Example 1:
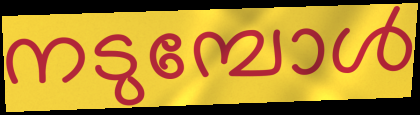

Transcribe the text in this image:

നടുമ്പോൾ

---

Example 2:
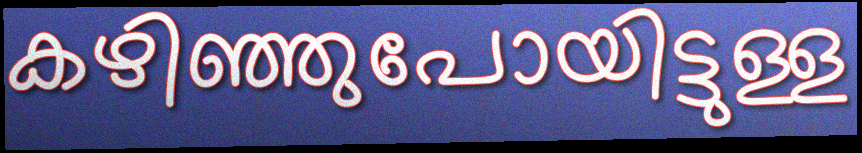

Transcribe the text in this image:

കഴിഞ്ഞുപോയിട്ടുള്ള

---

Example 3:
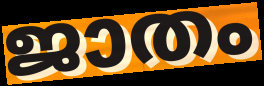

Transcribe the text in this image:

ജാതം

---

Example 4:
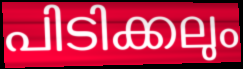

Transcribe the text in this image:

പിടിക്കലും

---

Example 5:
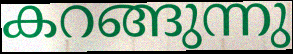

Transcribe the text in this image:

കറങ്ങുന്നു